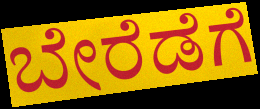
ಬೇರೆಡೆಗೆ